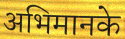
अभिमानके